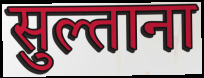
सुल्ताना